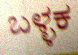
ಬಳ್ಳಕ